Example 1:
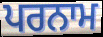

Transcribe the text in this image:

ਪਰਨਾਮ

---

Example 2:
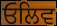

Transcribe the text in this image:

ਓਲਿਵ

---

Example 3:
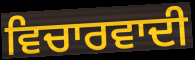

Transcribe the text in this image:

ਵਿਚਾਰਵਾਦੀ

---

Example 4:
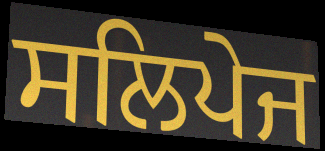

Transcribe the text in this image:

ਸਲਿਪੇਜ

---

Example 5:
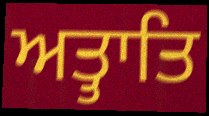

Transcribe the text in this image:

ਅਤ੍ਤਾਤਿ